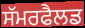
ਸੱਮਰਫੈਲਡ